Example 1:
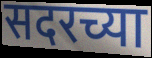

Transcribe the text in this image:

सदरच्या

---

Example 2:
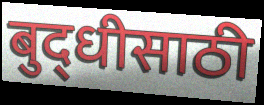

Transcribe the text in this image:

बुद्धीसाठी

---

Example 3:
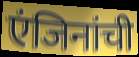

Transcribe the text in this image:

एंजिनांची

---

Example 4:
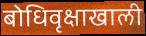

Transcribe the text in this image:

बोधिवृक्षाखाली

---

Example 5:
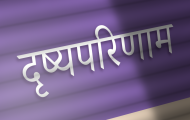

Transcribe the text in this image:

दृष्यपरिणाम